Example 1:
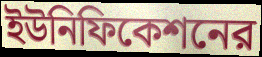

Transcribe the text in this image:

ইউনিফিকেশনের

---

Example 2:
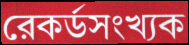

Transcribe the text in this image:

রেকর্ডসংখ্যক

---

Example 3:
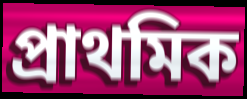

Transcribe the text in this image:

প্রাথমিক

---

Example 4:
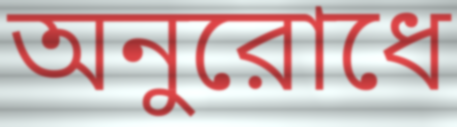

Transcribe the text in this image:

অনুরোধে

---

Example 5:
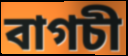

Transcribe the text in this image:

বাগচী